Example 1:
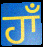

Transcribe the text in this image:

ਹਾਁ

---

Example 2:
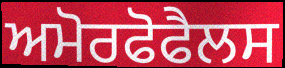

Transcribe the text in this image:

ਅਮੋਰਫੋਫੈਲਸ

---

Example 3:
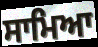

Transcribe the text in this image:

ਸਾਮਿਆ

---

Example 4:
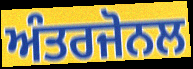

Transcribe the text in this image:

ਅੰਤਰਜੋਨਲ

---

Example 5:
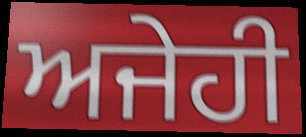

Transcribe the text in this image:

ਅਜੇਹੀ